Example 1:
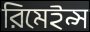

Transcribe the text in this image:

রিমেইন্স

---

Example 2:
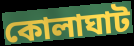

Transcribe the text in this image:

কোলাঘাট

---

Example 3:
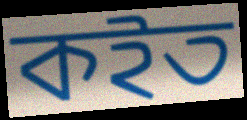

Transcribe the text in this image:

কইত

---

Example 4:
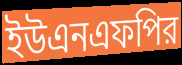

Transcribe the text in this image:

ইউএনএফপির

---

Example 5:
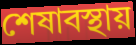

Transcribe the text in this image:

শেষাবস্থায়